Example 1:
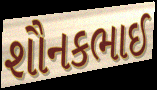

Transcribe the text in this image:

શૌનકભાઈ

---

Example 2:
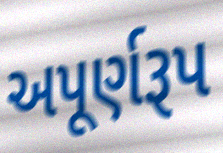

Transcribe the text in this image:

અપૂર્ણરૂપ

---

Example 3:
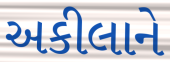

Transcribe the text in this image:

અકીલાને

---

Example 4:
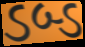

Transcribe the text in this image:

ડબ્ડ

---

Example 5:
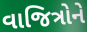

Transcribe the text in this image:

વાજિત્રોને